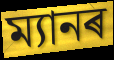
ম্যানৰ